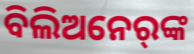
ବିଲିଅନେର୍‌ଙ୍କ